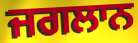
ਜਗਲਾਨ